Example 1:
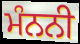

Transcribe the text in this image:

ਮੰਨਨੀ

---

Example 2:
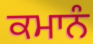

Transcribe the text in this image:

ਕਮਾਨੰ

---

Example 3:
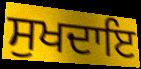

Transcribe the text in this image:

ਸੁਖਦਾਇ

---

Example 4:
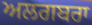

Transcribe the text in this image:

ਅਲਗਬਰਾ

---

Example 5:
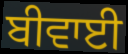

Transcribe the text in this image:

ਬੀਵਾਈ